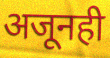
अजूनही